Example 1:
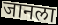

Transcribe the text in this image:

जानला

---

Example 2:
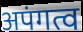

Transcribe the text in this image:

अपंगत्व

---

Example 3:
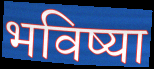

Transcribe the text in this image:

भविष्या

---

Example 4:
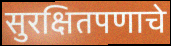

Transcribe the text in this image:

सुरक्षितपणाचे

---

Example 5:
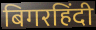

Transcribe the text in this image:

बिगरहिंदी